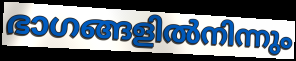
ഭാഗങ്ങളിൽനിന്നും